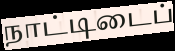
நாட்டிடைப்